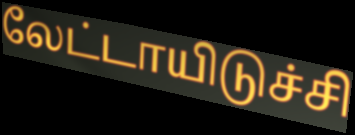
லேட்டாயிடுச்சி